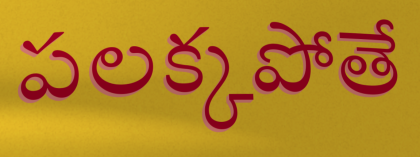
పలక్కపోతే